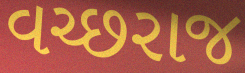
વચ્છરાજ